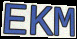
EKM